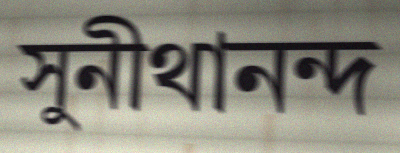
সুনীথানন্দ